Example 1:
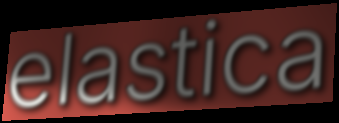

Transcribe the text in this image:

elastica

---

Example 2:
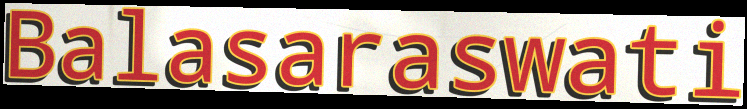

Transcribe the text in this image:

Balasaraswati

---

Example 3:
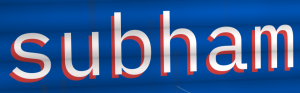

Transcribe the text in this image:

subham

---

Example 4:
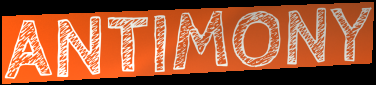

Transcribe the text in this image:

ANTIMONY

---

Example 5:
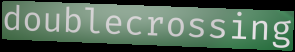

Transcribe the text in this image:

doublecrossing